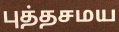
புத்தசமய